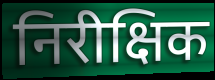
निरीक्षिक